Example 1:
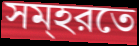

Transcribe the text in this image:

সম্হরতে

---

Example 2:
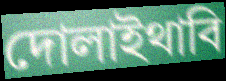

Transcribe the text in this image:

দোলাইথাবি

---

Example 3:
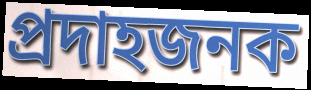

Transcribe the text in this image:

প্রদাহজনক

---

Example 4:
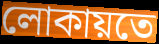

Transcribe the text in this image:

লোকায়তে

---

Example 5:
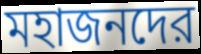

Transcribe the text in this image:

মহাজনদের